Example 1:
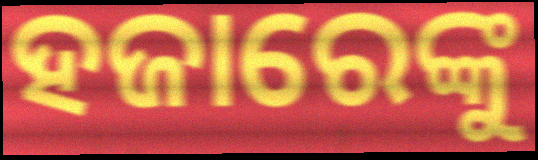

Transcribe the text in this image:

ହଜାରେଙ୍କୁ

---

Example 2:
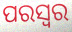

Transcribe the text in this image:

ପରସ୍ୱର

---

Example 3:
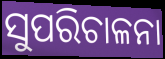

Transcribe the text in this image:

ସୁପରିଚାଳନା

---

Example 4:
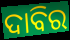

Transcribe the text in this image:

ଦାବିର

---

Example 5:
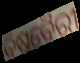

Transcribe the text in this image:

ବିଷବୈରୀ